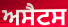
ਅਸੈਟਸ